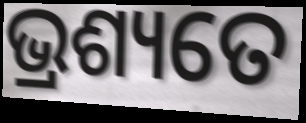
ଭ୍ରଶ୍ୟତେ